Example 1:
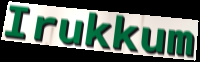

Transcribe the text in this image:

Irukkum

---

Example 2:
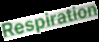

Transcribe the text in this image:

Respiration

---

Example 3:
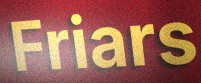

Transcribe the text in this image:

Friars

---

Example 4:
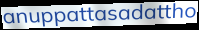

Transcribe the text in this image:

anuppattasadattho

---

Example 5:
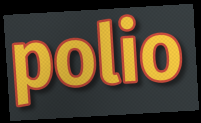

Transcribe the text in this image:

polio